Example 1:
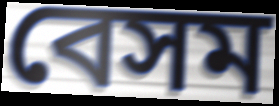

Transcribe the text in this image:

বেসম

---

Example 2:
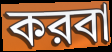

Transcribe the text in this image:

করবা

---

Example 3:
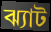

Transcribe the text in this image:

ঝ্যাট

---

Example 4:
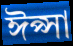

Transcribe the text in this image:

ঈপ্সা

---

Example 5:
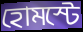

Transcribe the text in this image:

হোমস্টে